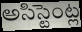
అసిస్టెంట్ల